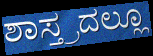
ಶಾಸ್ತ್ರದಲ್ಲೂ